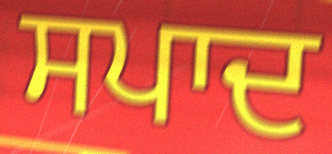
ਸਪਾਦ